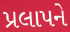
પ્રલાપને